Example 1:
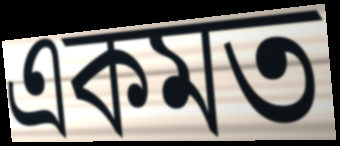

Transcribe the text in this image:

একমত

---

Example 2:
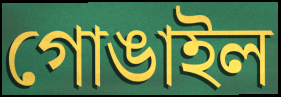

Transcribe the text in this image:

গোঙাইল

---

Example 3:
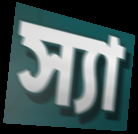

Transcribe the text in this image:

স্যা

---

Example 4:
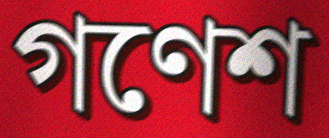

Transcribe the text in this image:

গণেশ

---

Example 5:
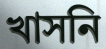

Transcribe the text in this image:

খাসনি